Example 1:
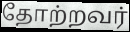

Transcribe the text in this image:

தோற்றவர்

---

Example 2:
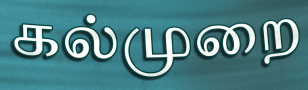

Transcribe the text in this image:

கல்முறை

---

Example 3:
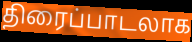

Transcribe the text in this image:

திரைப்பாடலாக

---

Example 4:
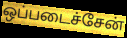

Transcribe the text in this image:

ஒப்படைச்சேன்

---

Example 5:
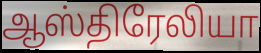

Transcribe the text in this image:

ஆஸ்திரேலியா